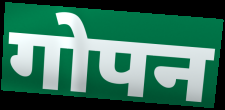
गोपन